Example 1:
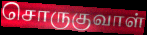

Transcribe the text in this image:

சொருகுவாள்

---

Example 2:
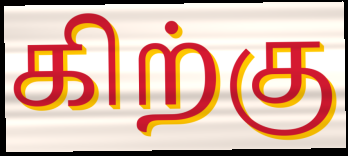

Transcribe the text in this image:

கிற்கு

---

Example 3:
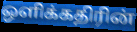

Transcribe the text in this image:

ஒளிக்கதிரின்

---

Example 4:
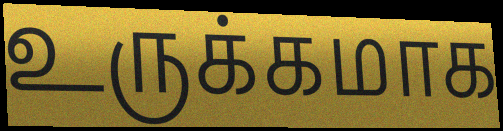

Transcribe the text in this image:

உருக்கமாக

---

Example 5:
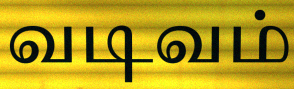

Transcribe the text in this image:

வடிவம்